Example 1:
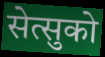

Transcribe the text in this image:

सेत्सुको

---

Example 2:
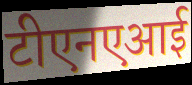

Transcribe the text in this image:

टीएनएआई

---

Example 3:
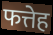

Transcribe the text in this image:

फत्तेह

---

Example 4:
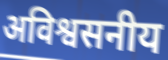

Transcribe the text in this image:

अविश्वसनीय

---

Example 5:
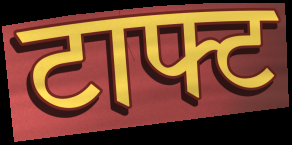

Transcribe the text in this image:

टाफ्ट